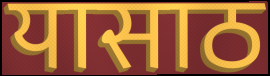
यासाठ